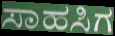
ಸಾಹಸಿಗ